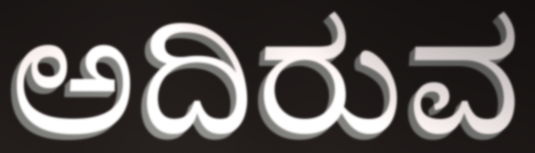
ಅದಿರುವ